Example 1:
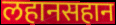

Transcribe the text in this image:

लहानसहान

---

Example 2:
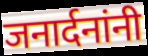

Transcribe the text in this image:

जनार्दनांनी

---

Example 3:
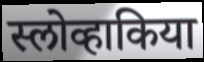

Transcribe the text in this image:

स्लोव्हाकिया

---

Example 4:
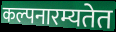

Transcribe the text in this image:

कल्पनारम्यतेत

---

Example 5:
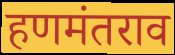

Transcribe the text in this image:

हणमंतराव